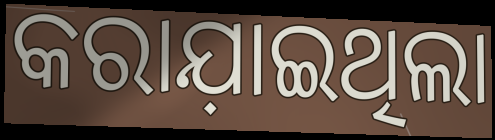
କରାଯ଼ାଇଥିଲା